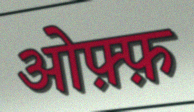
ओफ़्फ़